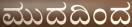
ಮುದದಿಂದ